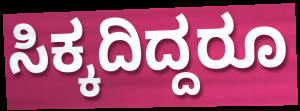
ಸಿಕ್ಕದಿದ್ದರೂ